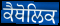
ਕੈਥੋਲਿਕ